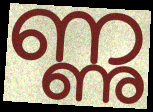
ണ്ണു